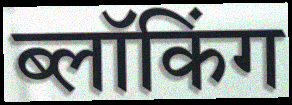
ब्लॉकिंग